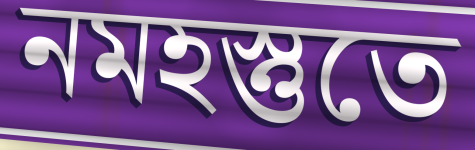
নমহস্তুতে